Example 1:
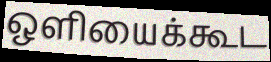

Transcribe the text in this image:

ஒளியைக்கூட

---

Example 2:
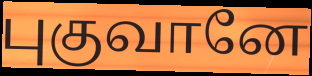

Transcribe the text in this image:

புகுவானே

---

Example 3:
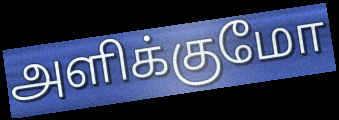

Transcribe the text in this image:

அளிக்குமோ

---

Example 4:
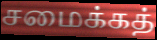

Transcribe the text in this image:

சமைக்கத்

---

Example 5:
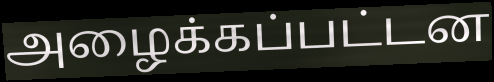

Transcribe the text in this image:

அழைக்கப்பட்டன